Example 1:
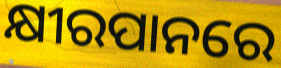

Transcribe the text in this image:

କ୍ଷୀରପାନରେ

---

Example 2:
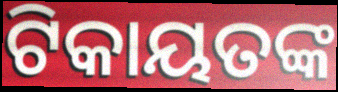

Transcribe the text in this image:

ଟିକାୟତଙ୍କ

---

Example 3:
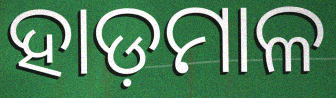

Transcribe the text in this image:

ହାଡ଼ମାଳ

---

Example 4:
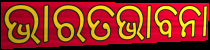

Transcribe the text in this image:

ଭାରତଭାବନା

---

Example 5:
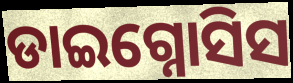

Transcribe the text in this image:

ଡାଇଗ୍ନୋସିସ